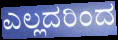
ಎಲ್ಲದರಿಂದ